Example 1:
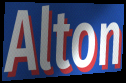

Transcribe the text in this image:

Alton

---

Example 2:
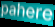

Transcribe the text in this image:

pahere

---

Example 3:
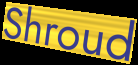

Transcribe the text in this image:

Shroud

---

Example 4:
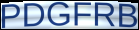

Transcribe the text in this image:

PDGFRB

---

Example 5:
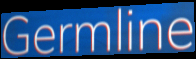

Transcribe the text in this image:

Germline